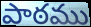
పాఠము